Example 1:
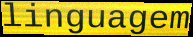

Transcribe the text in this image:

linguagem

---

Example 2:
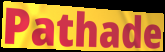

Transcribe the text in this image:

Pathade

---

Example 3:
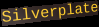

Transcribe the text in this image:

Silverplate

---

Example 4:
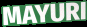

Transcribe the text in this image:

MAYURI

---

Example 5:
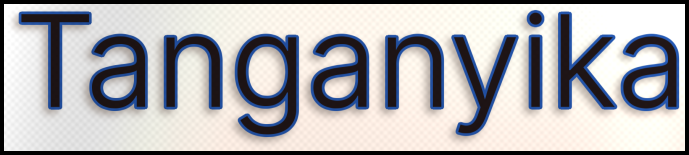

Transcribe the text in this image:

Tanganyika